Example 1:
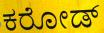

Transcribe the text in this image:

ಕರೋಡ್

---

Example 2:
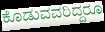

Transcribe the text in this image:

ಕೊಡುವವರಿದ್ದರೂ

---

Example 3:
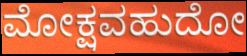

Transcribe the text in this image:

ಮೋಕ್ಷವಹುದೋ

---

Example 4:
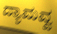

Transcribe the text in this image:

ದ್ಯಾಮವ್ವ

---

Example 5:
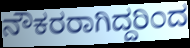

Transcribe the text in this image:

ನೌಕರರಾಗಿದ್ದರಿಂದ